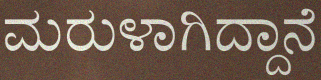
ಮರುಳಾಗಿದ್ದಾನೆ